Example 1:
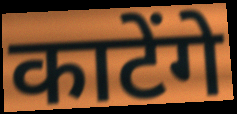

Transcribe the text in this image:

काटेंगे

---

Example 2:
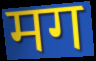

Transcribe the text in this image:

मग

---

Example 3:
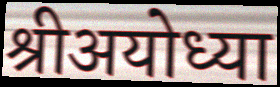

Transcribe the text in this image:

श्रीअयोध्या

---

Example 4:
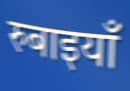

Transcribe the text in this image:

रुबाइयाँ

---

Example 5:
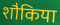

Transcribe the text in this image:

शौकिया